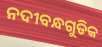
ନଦୀବନ୍ଧଗୁଡିକ